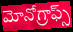
మోనోగ్రాఫ్స్